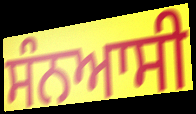
ਸੰਨਆਸੀ